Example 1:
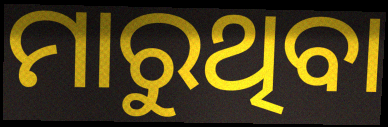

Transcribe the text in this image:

ମାରୁଥିବା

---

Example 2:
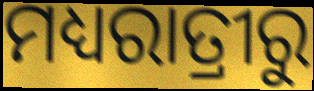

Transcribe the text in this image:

ମଧ୍ୟରାତ୍ରୀରୁ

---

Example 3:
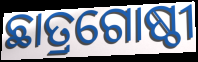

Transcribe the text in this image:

ଛାତ୍ରଗୋଷ୍ଠୀ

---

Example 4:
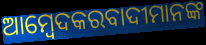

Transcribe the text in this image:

ଆମ୍ବେଦକରବାଦୀମାନଙ୍କ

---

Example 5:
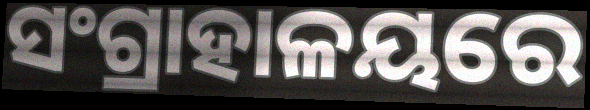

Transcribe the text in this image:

ସଂଗ୍ରାହାଳୟରେ